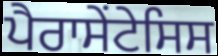
ਪੈਰਾਸੇਂਟੇਸਿਸ